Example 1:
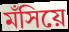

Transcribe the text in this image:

মঁসিয়ে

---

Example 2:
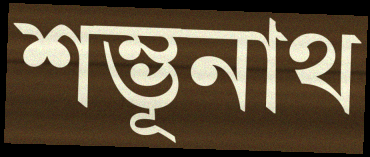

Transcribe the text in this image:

শম্ভূনাথ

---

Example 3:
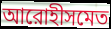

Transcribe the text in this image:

আরোহীসমেত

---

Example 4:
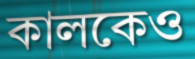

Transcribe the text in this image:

কালকেও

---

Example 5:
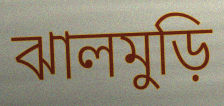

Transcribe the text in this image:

ঝালমুড়ি